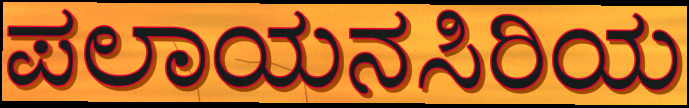
ಪಲಾಯನಸಿರಿಯ